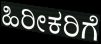
ಹಿರೀಕರಿಗೆ